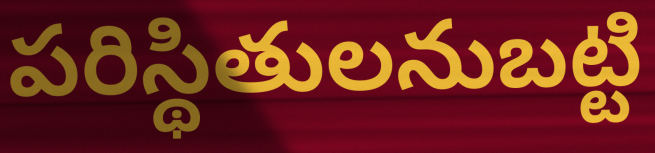
పరిస్థితులనుబట్టి